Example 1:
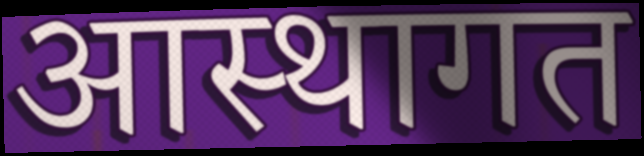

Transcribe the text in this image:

आस्थागत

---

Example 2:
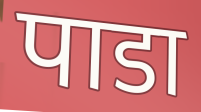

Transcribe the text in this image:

पाडा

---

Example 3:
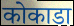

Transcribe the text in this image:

कोकाडा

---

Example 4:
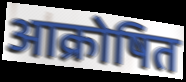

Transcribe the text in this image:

आक्रोषित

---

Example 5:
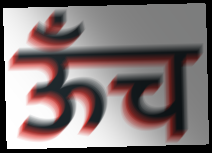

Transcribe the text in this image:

ऊँच